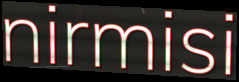
nirmisi